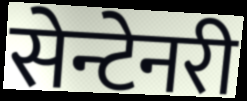
सेन्टेनरी